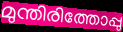
മുന്തിരിത്തോപ്പു